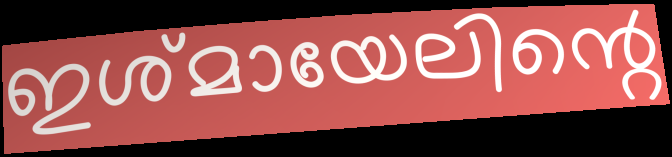
ഇശ്മായേലിന്റെ